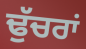
ਢੁੱਚਰਾਂ